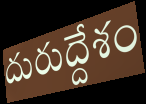
దురుద్దేశం